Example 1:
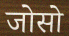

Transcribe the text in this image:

जोसो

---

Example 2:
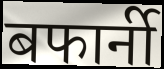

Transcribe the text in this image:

बफार्नी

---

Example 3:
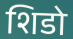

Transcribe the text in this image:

शिडो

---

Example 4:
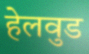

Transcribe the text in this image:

हेलवुड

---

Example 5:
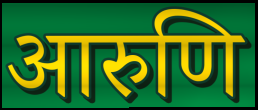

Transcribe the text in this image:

आरुणि